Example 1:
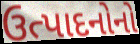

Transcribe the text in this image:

ઉત્પાદનોનો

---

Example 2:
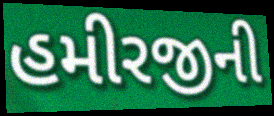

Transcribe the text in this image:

હમીરજીની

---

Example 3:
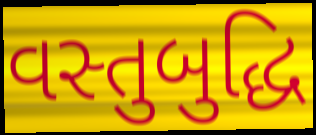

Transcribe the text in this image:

વસ્તુબુદ્ધિ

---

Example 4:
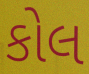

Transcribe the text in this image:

કોલ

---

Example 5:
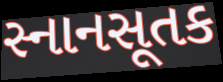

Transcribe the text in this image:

સ્નાનસૂતક